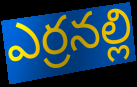
ఎర్రనల్లి